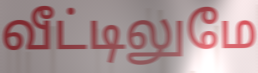
வீட்டிலுமே